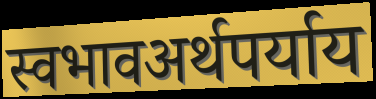
स्वभावअर्थपर्याय